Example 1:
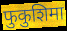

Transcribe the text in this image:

फुकुशिमा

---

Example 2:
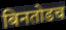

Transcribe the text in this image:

बिनतोडच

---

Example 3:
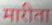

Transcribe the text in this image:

मारीता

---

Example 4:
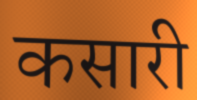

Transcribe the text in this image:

कसारी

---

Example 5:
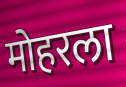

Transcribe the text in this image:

मोहरला